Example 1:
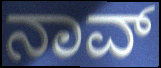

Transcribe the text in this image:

ನಾವ್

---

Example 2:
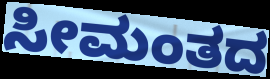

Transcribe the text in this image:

ಸೀಮಂತದ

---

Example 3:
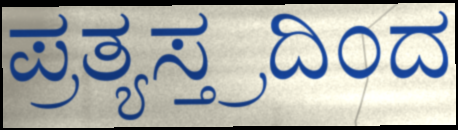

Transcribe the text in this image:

ಪ್ರತ್ಯಸ್ತ್ರದಿಂದ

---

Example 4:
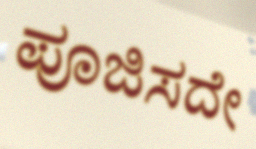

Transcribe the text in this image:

ಪೂಜಿಸದೇ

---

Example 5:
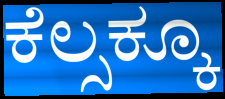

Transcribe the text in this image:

ಕೆಲ್ಸಕ್ಕೂ